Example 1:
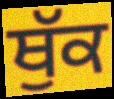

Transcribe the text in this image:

ਥੁੱਕ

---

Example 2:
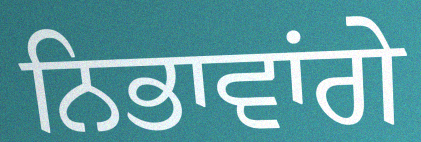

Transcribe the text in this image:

ਨਿਭਾਵਾਂਗੇ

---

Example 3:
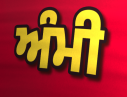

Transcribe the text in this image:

ਅੰਮੀ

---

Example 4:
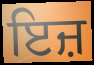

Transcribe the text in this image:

ਇਜ਼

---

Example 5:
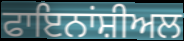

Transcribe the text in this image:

ਫਾਇਨਾਂਸ਼ੀਅਲ